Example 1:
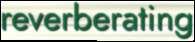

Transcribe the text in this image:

reverberating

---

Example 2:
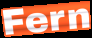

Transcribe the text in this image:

Fern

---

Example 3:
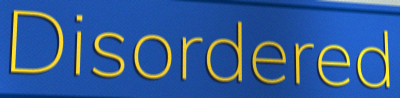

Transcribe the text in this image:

Disordered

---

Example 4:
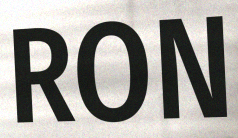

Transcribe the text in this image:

RON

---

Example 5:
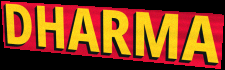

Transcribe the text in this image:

DHARMA